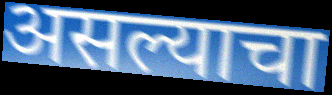
असल्‍याचा